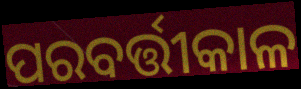
ପରବର୍ତ୍ତୀକାଳ